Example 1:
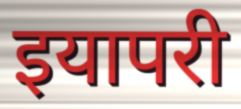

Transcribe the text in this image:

इयापरी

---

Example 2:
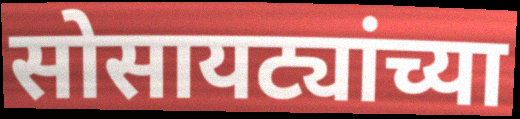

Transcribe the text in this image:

सोसायट्यांच्या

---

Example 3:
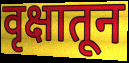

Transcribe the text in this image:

वृक्षातून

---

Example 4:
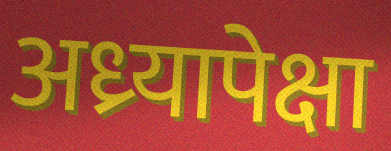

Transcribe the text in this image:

अध्र्यापेक्षा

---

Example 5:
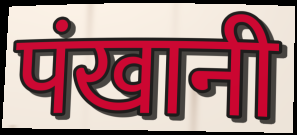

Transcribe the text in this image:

पंखानी